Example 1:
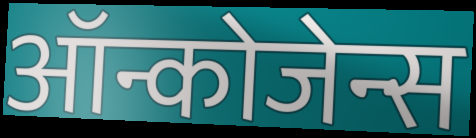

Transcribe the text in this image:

ऑन्कोजेन्स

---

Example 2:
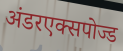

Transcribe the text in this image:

अंडरएक्सपोज्ड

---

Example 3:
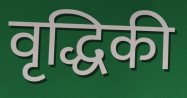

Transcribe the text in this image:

वृद्धिकी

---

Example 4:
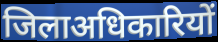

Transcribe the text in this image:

जिलाअधिकारियों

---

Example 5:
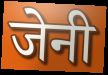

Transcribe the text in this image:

जेनी